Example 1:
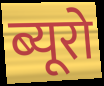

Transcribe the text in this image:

ब्‍यूरो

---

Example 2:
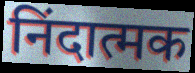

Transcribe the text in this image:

निंदात्मक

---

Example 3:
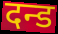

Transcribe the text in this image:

दन्ड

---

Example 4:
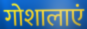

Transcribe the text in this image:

गोशालाएं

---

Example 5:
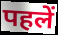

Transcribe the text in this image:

पहलें